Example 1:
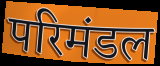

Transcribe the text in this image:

परिमंडल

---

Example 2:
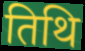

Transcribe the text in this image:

तिथि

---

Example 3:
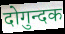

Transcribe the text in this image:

दोगुन्दक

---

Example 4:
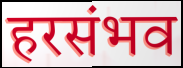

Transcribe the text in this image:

हरसंभव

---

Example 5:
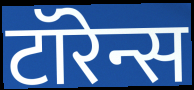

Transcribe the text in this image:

टॉरेन्स